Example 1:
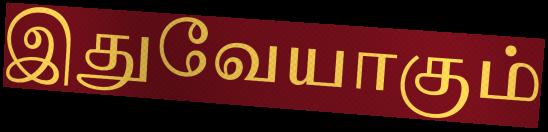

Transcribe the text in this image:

இதுவேயாகும்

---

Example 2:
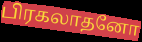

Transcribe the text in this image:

பிரகலாதனோ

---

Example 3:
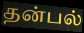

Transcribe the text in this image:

தன்பல்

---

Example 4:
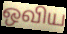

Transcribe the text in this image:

ஒவிய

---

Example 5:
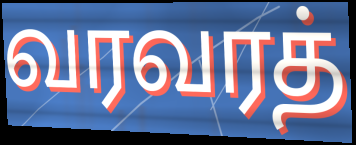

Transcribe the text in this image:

வரவரத்